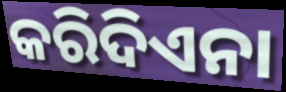
କରିଦିଏନା